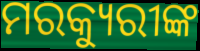
ମରକ୍ୟୁରୀଙ୍କ